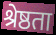
श्रेष्ठता